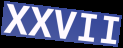
XXVII